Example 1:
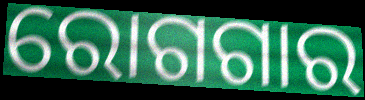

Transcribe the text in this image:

ରୋଗଗାର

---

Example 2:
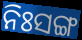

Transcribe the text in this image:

ନିଃସଙ୍ଗ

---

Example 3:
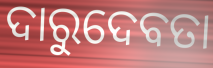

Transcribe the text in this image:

ଦାରୁଦେବତା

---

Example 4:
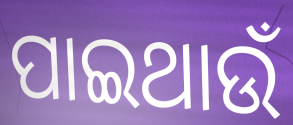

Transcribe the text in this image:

ପାଇଥାଉଁ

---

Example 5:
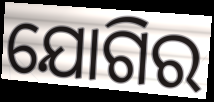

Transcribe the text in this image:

ଯୋଗିର